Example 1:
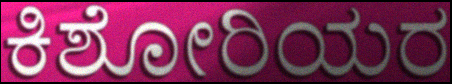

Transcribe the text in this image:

ಕಿಶೋರಿಯರ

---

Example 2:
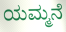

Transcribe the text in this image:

ಯಮ್ಮನೆ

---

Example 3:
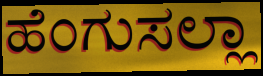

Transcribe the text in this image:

ಹೆಂಗುಸಲ್ಲಾ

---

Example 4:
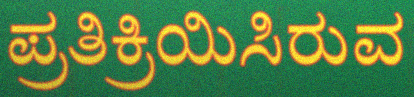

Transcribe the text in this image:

ಪ್ರತಿಕ್ರಿಯಿಸಿರುವ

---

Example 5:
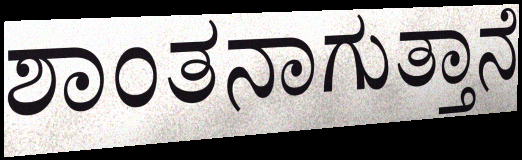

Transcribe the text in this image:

ಶಾಂತನಾಗುತ್ತಾನೆ